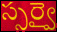
స్సర్వై